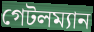
গেটলম্যান